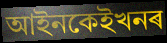
আইনকেইখনৰ